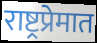
राष्ट्रप्रेमात